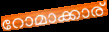
റോമാക്കാര്